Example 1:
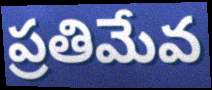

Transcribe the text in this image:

ప్రతిమేవ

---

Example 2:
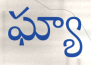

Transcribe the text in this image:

ఘ్యా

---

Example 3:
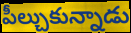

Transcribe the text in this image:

పీల్చుకున్నాడు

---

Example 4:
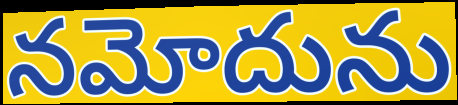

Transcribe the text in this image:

నమోదును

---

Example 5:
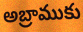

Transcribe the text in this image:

అబ్రాముకు